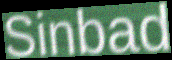
Sinbad